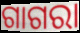
ଗାଗରା